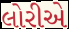
લોરીએ